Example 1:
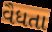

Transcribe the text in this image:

વૈધતા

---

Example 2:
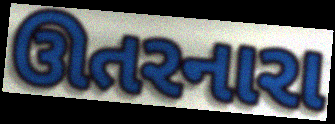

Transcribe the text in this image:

ઊતરનારા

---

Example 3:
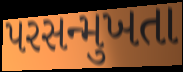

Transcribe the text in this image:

પરસન્મુખતા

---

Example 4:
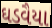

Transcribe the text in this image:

ઘડવૈયા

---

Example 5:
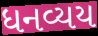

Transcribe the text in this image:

ધનવ્યય